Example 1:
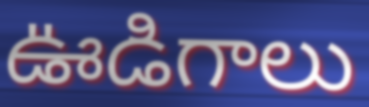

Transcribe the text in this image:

ఊడిగాలు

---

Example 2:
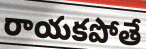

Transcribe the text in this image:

రాయకపోతే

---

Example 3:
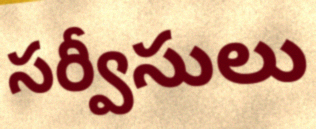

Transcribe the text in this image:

సర్వీసులు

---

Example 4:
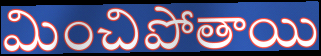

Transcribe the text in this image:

మించిపోతాయి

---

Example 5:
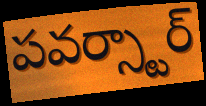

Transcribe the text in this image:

పవర్స్టార్